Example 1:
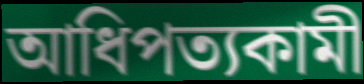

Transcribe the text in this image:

আধিপত্যকামী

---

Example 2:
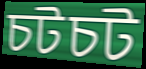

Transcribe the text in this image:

চটচট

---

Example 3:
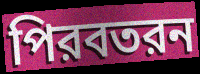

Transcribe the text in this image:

পিরবতরন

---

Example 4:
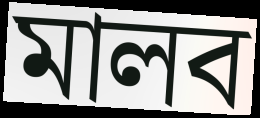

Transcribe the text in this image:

মালব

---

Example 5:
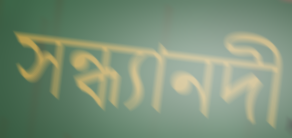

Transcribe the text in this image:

সন্ধ্যানদী